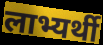
लाभ्यर्थी